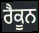
ਰੈਕੂਨ